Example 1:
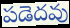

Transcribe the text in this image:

పడెదవు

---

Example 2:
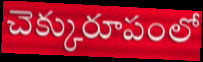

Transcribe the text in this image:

చెక్కురూపంలో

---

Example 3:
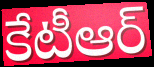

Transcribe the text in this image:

కేటీఆర్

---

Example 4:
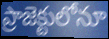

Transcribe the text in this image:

ప్రాజెక్టులోనూ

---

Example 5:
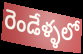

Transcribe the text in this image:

రెండేళ్ళలో